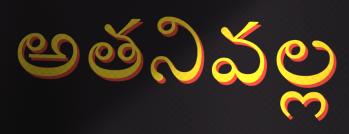
అతనివల్ల